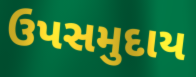
ઉપસમુદાય